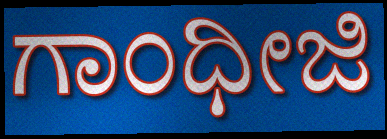
ಗಾಂಧೀಜಿ